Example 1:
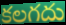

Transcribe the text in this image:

కలగదు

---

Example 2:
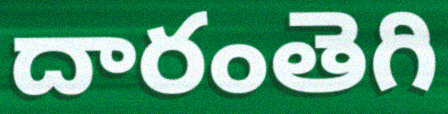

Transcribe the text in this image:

దారంతెగి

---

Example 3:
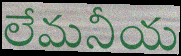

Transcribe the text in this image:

లేమనీయ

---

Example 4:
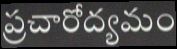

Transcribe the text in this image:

ప్రచారోద్యమం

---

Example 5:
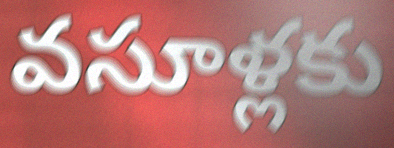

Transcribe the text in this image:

వసూళ్లకు